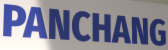
PANCHANG